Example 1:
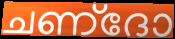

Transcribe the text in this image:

ചണ്ദോ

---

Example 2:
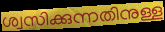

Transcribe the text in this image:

ശ്വസിക്കുന്നതിനുള്ള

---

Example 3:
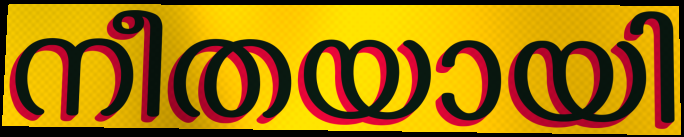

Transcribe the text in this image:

നീതയായി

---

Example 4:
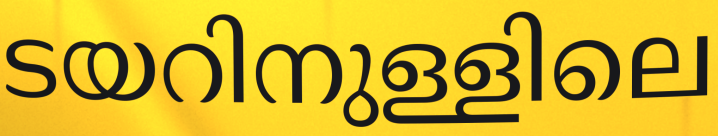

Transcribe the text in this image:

ടയറിനുള്ളിലെ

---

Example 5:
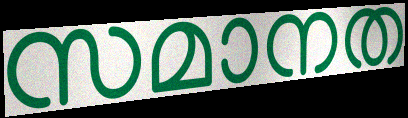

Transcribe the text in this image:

സമാനത